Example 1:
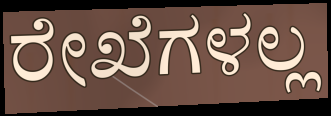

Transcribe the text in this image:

ರೇಖೆಗಳಲ್ಲ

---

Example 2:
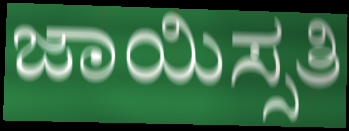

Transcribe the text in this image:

ಜಾಯಿಸ್ಸತಿ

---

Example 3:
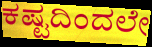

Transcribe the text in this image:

ಕಷ್ಟದಿಂದಲೇ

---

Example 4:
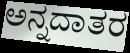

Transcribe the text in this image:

ಅನ್ನದಾತರ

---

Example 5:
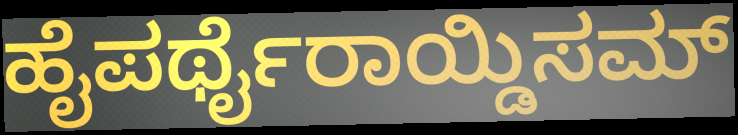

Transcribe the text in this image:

ಹೈಪರ್ಥೈರಾಯ್ಡಿಸಮ್